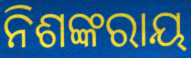
ନିଶଙ୍କରାୟ